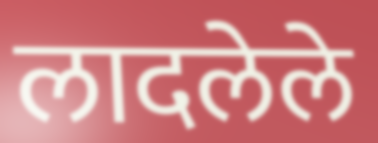
लादलेले